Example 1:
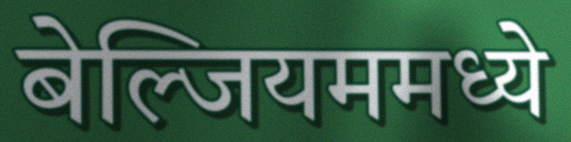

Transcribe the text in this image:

बेल्जियममध्ये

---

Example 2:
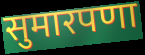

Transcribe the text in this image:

सुमारपणा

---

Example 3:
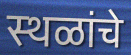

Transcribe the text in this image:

स्थळांचे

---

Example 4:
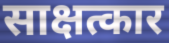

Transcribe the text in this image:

साक्षत्कार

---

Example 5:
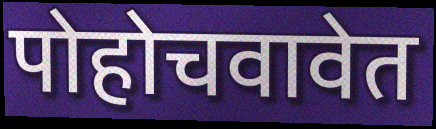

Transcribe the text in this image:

पोहोचवावेत